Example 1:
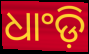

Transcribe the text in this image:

ଧାଂଡ଼ି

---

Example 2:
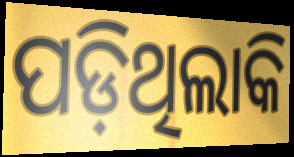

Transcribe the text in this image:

ପଡ଼ିଥିଲାକି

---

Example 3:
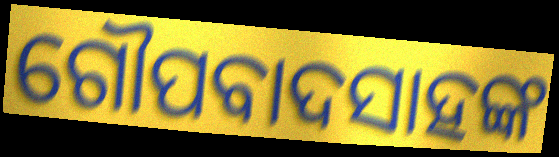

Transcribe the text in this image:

ଗୌପବାଦସାହଙ୍କ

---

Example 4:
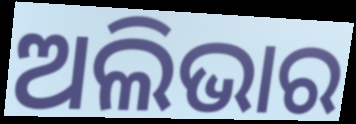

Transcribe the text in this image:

ଅଲିଭାର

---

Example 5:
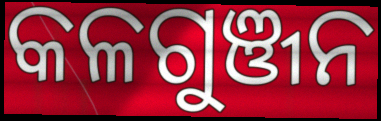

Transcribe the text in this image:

କଳଗୁଞ୍ଜନ